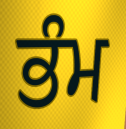
ਭੰਮ